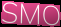
SMO